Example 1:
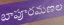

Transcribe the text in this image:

బాపూరమణల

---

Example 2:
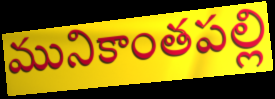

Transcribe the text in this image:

మునికాంతపల్లి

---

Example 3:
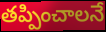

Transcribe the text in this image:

తప్పించాలనే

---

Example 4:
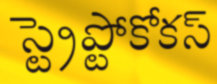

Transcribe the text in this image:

స్ట్రెప్టోకోకస్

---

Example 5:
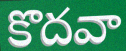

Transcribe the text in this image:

కొదవా